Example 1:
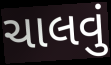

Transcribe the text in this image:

ચાલવું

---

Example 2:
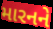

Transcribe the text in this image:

મારનને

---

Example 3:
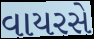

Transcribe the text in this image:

વાયરસે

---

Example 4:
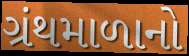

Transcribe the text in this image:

ગ્રંથમાળાનો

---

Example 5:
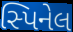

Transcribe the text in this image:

સ્પિનેલ